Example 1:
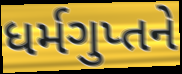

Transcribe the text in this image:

ધર્મગુપ્તને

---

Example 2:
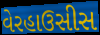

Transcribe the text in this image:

વેરહાઉસીસ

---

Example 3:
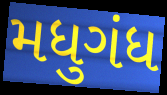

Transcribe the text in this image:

મધુગંધ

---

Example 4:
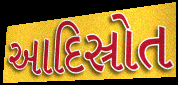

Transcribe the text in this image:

આદિસ્રોત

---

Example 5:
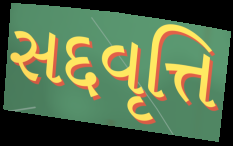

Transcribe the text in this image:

સદ્દવૃત્તિ